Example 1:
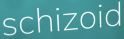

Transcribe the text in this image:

schizoid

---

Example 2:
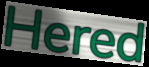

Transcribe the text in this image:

Hered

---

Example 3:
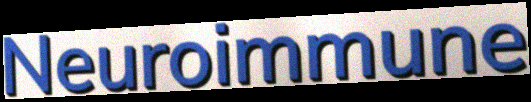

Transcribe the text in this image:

Neuroimmune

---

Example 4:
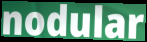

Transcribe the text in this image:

nodular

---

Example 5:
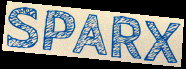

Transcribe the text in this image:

SPARX